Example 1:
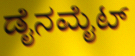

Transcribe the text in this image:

ಡೈನಮೈಟ್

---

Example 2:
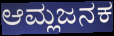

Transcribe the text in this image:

ಆಮ್ಲಜನಕ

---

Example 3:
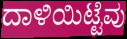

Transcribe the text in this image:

ದಾಳಿಯಿಟ್ಟೆವು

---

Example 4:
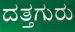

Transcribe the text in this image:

ದತ್ತಗುರು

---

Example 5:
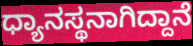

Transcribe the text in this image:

ಧ್ಯಾನಸ್ಥನಾಗಿದ್ದಾನೆ